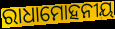
ରାଧାମୋହନୀୟ